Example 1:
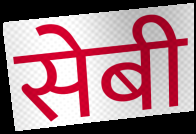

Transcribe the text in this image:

सेबी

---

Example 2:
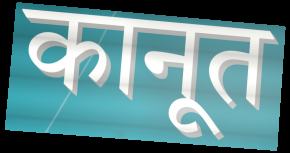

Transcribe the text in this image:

कानूत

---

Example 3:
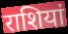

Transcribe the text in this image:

राशियां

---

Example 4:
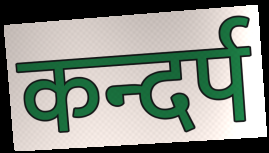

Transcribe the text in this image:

कन्दर्प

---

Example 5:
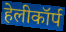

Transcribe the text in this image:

हेलीकॉर्प